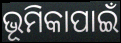
ଭୂମିକାପାଇଁ